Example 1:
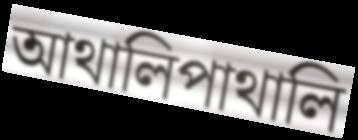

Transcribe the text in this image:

আথালিপাথালি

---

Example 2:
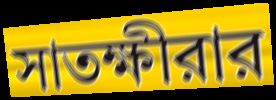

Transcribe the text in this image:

সাতক্ষীরার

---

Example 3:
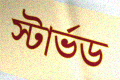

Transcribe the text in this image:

স্টার্ভড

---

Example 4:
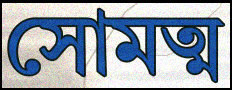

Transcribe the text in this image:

সোমত্ম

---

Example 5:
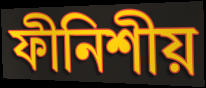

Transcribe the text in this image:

ফীনিশীয়